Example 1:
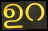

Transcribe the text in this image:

ഉറ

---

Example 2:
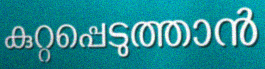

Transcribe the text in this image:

കുറ്റപ്പെടുത്താൻ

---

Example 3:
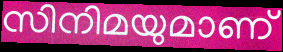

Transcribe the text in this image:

സിനിമയുമാണ്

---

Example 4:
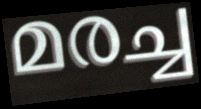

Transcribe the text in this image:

മരച്ച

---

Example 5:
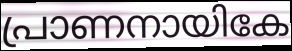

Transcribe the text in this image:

പ്രാണനായികേ